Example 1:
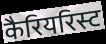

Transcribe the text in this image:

कैरियरिस्ट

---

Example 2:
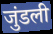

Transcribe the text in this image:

जुंडली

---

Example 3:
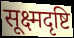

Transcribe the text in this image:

सूक्ष्मदृष्टि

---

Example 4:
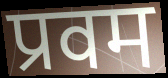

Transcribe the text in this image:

प्रवम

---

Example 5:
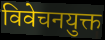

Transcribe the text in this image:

विवेचनयुक्त